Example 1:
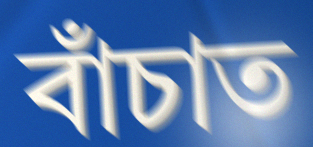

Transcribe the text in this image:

বাঁচাত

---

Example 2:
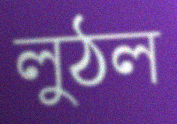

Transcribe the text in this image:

লুঠল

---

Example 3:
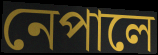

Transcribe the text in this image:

নেপালে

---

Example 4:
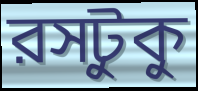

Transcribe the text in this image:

রসটুকু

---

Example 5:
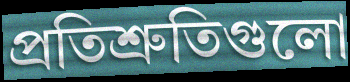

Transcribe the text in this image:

প্রতিশ্রুতিগুলো